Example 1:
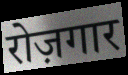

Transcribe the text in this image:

रोज़गार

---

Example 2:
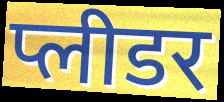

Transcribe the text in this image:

प्लीडर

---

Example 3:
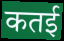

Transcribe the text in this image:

कतई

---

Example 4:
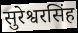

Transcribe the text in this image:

सुरेश्वरसिंह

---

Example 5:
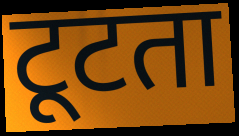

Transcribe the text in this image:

टूटता